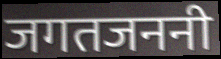
जगतजननी